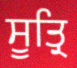
ਸੂਤ੍ਰਿ